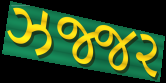
ઝજ્જર